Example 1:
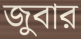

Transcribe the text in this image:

জুবার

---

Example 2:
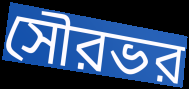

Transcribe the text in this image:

সৌরভর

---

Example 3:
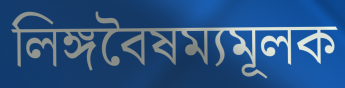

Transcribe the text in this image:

লিঙ্গবৈষম্যমূলক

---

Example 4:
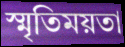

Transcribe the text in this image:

স্মৃতিময়তা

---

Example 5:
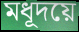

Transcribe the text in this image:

মধূদয়ে